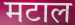
मटाल